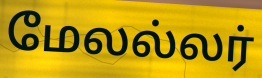
மேலல்லர்